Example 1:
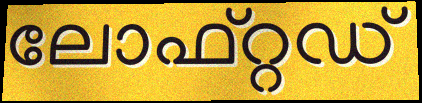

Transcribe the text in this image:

ലോഫ്റ്റഡ്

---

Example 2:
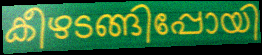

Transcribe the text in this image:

കീഴടങ്ങിപ്പോയി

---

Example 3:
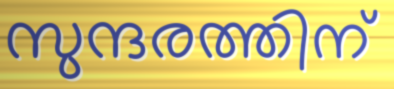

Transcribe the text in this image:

സുന്ദരത്തിന്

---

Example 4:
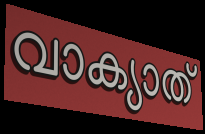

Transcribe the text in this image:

വാക്യാത്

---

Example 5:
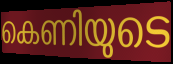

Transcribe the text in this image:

കെണിയുടെ